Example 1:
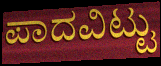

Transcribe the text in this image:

ಪಾದವಿಟ್ಟು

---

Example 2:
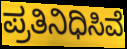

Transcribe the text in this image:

ಪ್ರತಿನಿಧಿಸಿವೆ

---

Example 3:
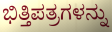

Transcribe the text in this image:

ಭಿತ್ತಿಪತ್ರಗಳನ್ನು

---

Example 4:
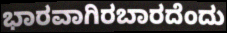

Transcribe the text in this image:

ಭಾರವಾಗಿರಬಾರದೆಂದು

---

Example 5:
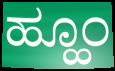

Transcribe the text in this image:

ಹ್ಹೂಂ